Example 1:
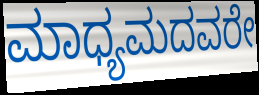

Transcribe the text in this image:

ಮಾಧ್ಯಮದವರೇ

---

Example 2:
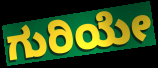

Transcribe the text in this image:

ಗುರಿಯೇ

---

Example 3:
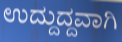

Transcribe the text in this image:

ಉದ್ದುದ್ದವಾಗಿ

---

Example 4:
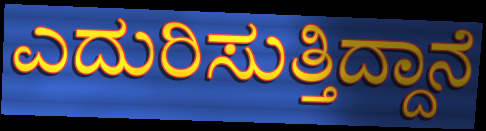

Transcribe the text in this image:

ಎದುರಿಸುತ್ತಿದ್ದಾನೆ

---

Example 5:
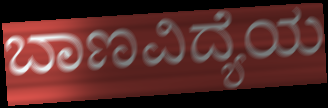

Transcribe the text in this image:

ಬಾಣವಿದ್ಯೆಯ